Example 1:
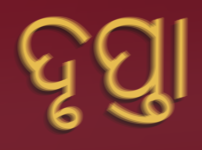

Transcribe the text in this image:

ଦୃପ୍ତା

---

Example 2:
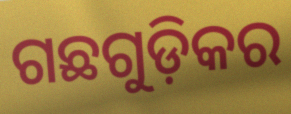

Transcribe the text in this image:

ଗଛଗୁଡ଼ିକର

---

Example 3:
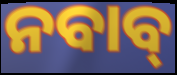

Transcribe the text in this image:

ନବାବ୍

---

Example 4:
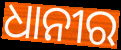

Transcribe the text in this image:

ଧାନୀର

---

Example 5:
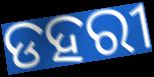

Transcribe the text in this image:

ଡହରୀ